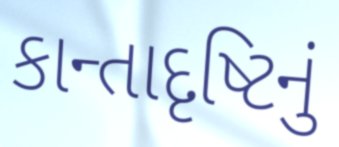
કાન્તાદૃષ્ટિનું